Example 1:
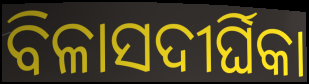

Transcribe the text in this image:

ବିଳାସଦୀର୍ଘିକା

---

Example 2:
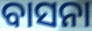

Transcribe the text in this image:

ବାସନା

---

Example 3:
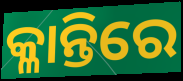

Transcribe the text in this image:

କ୍ଳାନ୍ତିରେ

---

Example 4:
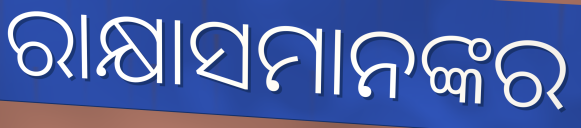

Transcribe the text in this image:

ରାକ୍ଷାସମାନଙ୍କର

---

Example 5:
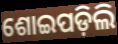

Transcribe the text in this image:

ଶୋଇପଡ଼ିଲି